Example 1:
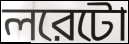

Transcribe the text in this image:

লরেটো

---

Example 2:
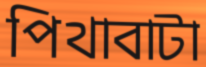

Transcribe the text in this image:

পিথাবাটা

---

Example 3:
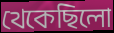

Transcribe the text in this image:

থেকেছিলো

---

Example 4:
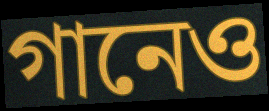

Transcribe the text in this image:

গানেও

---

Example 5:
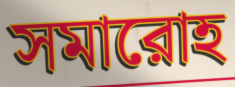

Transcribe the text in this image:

সমারোহ